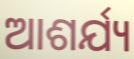
ଆଶର୍ଯ୍ୟ